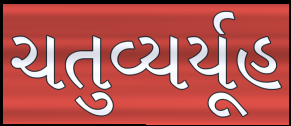
ચતુવ્યર્યૂહ